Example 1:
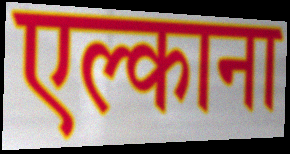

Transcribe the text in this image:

एल्काना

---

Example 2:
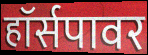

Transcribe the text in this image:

हॉर्सपावर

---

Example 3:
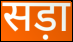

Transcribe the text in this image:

सड़ा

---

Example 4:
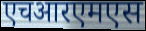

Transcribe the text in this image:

एचआरएमएस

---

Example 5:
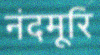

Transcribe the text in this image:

नंदमूरि